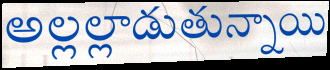
అల్లల్లాడుతున్నాయి